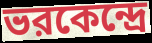
ভরকেন্দ্রে